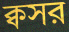
ক্বসর